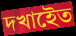
দখাইেত